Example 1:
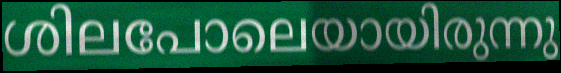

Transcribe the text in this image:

ശിലപോലെയായിരുന്നു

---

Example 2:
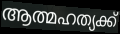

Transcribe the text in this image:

ആത്മഹത്യക്ക്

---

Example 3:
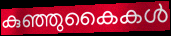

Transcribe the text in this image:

കുഞ്ഞുകൈകൾ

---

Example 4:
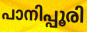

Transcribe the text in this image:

പാനിപ്പൂരി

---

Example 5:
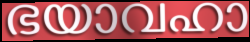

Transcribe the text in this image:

ഭയാവഹാ